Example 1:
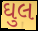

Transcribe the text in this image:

ઘુલ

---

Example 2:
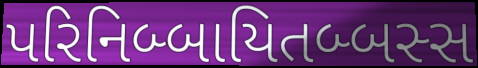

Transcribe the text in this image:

પરિનિબ્બાયિતબ્બસ્સ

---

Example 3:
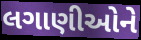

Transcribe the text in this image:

લગાણીઓને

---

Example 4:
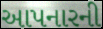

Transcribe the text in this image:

આપનારની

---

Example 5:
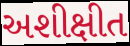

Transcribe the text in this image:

અશીક્ષીત